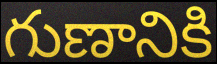
గుణానికి